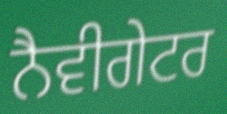
ਨੈਵੀਗੇਟਰ